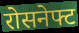
रोसनेफ्ट